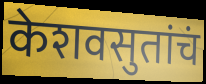
केशवसुतांचं